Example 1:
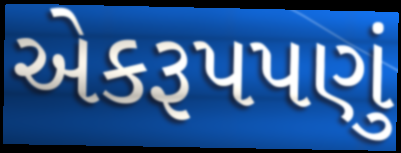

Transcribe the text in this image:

એકરૂપપણું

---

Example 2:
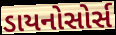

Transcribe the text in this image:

ડાયનોસોર્સ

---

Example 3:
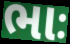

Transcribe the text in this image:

ભાઃ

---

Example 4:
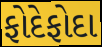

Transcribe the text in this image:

ફોદેફોદા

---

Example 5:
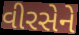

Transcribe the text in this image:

વીરસેને